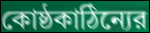
কোষ্ঠকাঠিন্যের